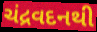
ચંદ્રવદનથી